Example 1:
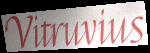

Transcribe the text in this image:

Vitruvius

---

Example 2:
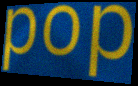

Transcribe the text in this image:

pop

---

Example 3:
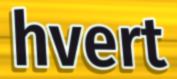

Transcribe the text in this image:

hvert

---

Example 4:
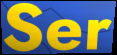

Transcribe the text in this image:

Ser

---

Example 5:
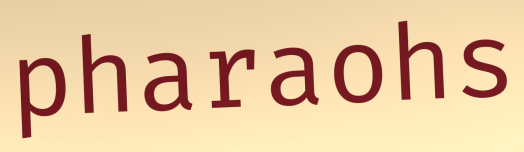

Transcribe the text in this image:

pharaohs